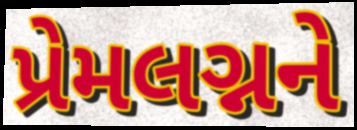
પ્રેમલગ્નને